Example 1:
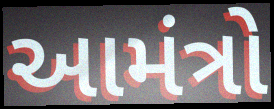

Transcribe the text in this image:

આમંત્રો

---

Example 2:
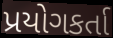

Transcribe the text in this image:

પ્રયોગકર્તા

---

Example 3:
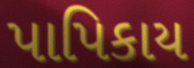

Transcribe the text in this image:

પાપિકાય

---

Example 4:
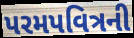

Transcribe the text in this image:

પરમપવિત્રની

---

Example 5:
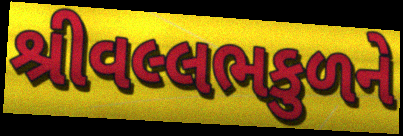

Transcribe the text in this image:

શ્રીવલ્લભકુળને